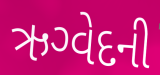
ઋગ્વેદની